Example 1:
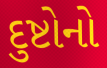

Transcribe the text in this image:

દુષ્ટોનો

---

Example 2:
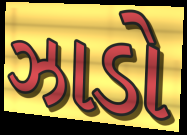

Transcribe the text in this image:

ઝાડો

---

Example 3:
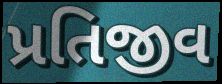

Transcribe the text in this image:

પ્રતિજીવ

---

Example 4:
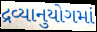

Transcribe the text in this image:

દ્રવ્યાનુયોગમાં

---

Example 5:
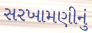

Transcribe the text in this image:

સરખામણીનું